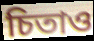
চিতাও